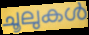
ചൂലുകൾ